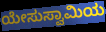
ಯೇಸುಸ್ವಾಮಿಯ